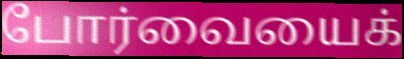
போர்வையைக்